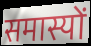
समास्यों